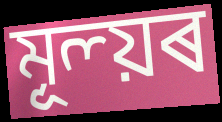
মূল্য়ৰ